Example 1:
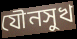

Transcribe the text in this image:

যৌনসুখ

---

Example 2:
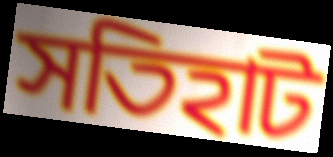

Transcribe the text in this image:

সতিহাট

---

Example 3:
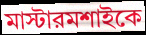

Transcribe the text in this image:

মাস্টারমশাইকে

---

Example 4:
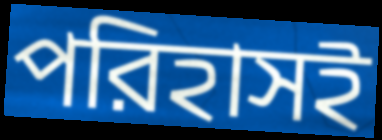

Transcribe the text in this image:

পরিহাসই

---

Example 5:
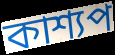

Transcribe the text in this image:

কাশ্যপ